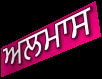
ਅਲਮਾਸ